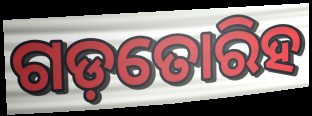
ଗଡ଼ତୋରିହ